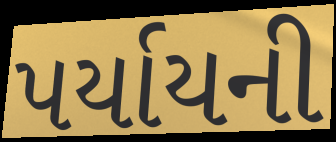
પર્યાયની